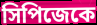
সিপিজেকে